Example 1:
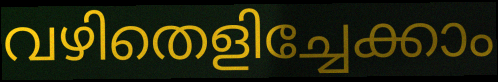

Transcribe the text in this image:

വഴിതെളിച്ചേക്കാം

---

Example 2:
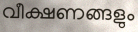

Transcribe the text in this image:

വീക്ഷണങ്ങളും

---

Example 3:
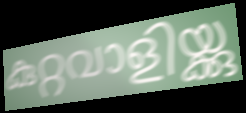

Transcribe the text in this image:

കുറ്റവാളിയ്ക്കു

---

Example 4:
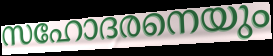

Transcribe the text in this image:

സഹോദരനെയും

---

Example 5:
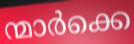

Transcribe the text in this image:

ന്മാർക്കെ